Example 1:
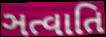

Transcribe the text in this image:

ઞત્વાતિ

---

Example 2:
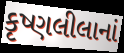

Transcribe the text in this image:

કૃષ્ણલીલાનાં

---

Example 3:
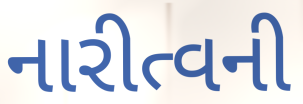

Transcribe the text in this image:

નારીત્વની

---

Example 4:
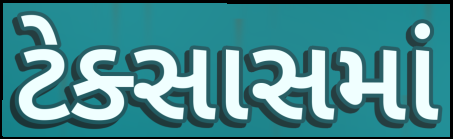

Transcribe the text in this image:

ટેક્સાસમાં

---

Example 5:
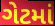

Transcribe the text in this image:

ગેટમાં